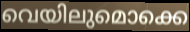
വെയിലുമൊക്കെ